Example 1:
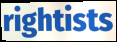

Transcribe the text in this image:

rightists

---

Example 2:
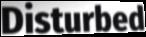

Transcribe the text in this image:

Disturbed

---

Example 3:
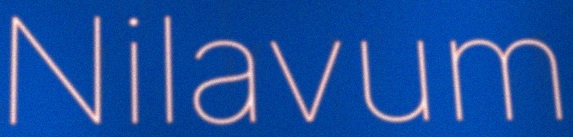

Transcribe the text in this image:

Nilavum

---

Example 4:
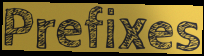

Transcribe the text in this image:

Prefixes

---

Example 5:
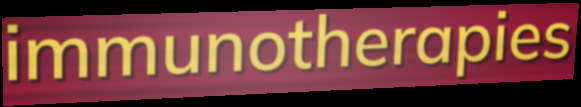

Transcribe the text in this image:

immunotherapies